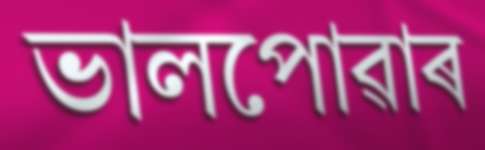
ভালপোৱাৰ